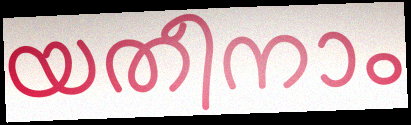
യതീനാം